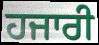
ਹਜਾਰੀ